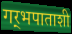
गर्भपाताशी